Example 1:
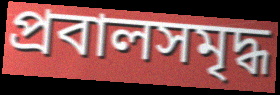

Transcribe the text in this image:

প্রবালসমৃদ্ধ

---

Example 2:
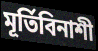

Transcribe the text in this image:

মূর্তিবিনাশী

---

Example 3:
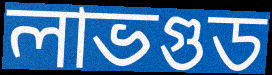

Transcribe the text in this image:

লাভগুড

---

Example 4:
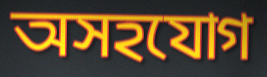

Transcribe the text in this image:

অসহযোগ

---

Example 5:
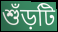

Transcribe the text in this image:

শুঁড়টি